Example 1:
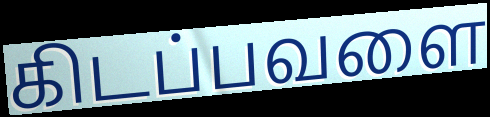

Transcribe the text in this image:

கிடப்பவளை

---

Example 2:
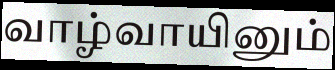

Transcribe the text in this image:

வாழ்வாயினும்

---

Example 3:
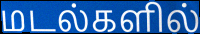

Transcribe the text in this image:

மடல்களில்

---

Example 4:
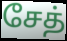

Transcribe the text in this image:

சேத்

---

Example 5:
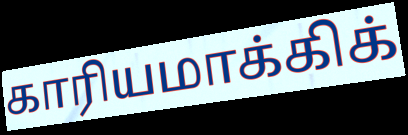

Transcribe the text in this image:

காரியமாக்கிக்